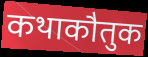
कथाकौतुक